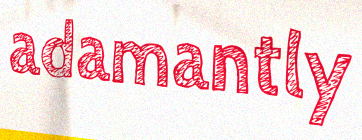
adamantly